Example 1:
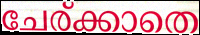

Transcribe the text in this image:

ചേര്ക്കാതെ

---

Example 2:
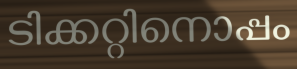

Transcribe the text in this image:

ടിക്കറ്റിനൊപ്പം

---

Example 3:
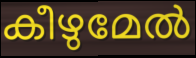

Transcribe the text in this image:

കീഴുമേൽ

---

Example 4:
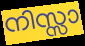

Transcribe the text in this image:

നിസ്സാ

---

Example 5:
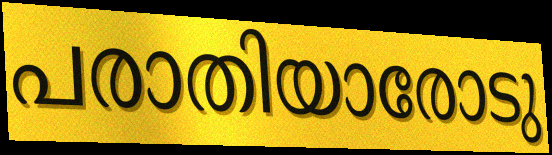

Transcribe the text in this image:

പരാതിയാരോടു